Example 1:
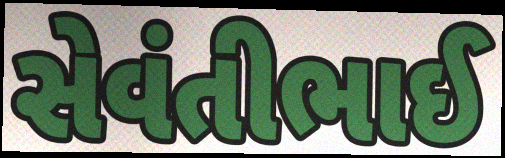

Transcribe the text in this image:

સેવંતીભાઈ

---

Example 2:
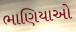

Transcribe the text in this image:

ભાણિયાઓ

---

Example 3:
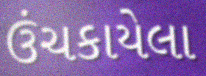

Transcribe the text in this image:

ઉંચકાયેલા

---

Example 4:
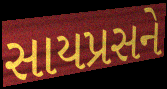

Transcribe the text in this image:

સાયપ્રસને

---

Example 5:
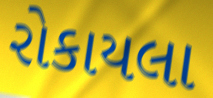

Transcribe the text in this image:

રોકાયલા